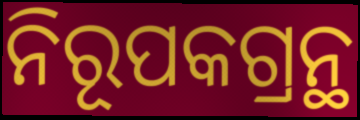
ନିରୂପକଗ୍ରନ୍ଥ